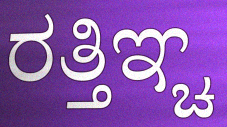
ರತ್ತಿಞ್ಚ